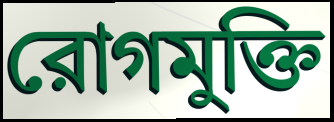
রোগমুক্তি